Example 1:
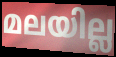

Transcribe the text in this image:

മലയില്ല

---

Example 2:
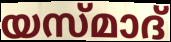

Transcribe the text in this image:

യസ്മാദ്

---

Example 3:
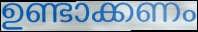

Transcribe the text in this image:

ഉണ്ടാക്കണം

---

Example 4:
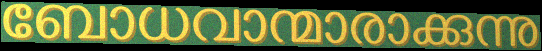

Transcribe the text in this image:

ബോധവാന്മാരാക്കുന്നു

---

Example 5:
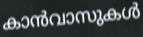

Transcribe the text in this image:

കാൻവാസുകൾ